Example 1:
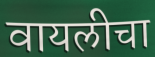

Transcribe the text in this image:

वायलीचा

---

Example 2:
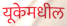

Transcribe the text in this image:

यूकेमधील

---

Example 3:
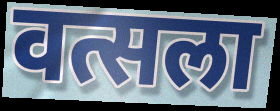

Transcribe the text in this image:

वत्सला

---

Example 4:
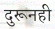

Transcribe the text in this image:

दुरूनही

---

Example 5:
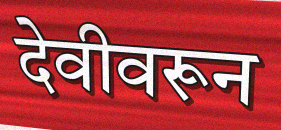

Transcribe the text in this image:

देवीवरून